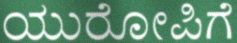
ಯುರೋಪಿಗೆ